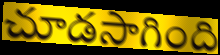
చూడసాగింది